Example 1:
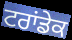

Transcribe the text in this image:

ਟਰਾਂਡੇਕ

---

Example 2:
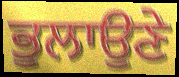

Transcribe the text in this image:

ਭੁਲਾਉਣੇ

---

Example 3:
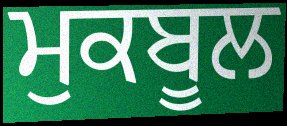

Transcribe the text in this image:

ਮੁਕਬੂਲ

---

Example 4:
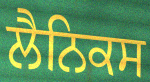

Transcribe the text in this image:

ਲੈਨਿਕਸ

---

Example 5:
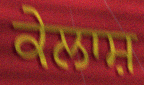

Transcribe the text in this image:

ਕੇਲਾਸ਼